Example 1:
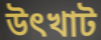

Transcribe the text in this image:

উৎখাট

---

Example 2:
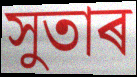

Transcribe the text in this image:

সুতাৰ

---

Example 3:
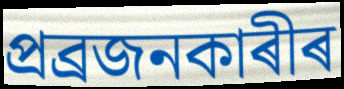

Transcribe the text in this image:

প্ৰব্ৰজনকাৰীৰ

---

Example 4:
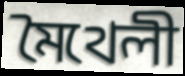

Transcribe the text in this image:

মৈথেলী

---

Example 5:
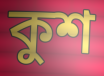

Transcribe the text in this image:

কুশ